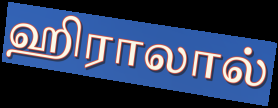
ஹிராலால்